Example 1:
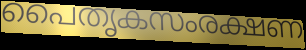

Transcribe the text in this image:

പൈതൃകസംരക്ഷണ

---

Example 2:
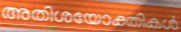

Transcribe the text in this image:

അതിശയോക്തികൾ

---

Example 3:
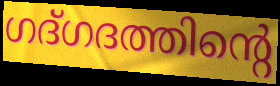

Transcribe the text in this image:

ഗദ്ഗദത്തിന്റെ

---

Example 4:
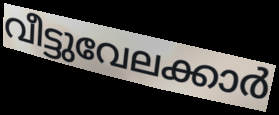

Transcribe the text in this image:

വീട്ടുവേലക്കാർ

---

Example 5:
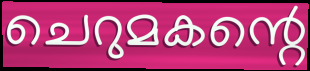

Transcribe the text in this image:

ചെറുമകന്റെ